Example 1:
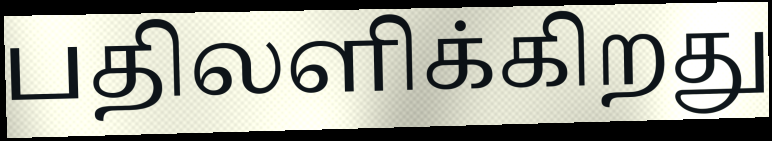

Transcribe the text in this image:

பதிலளிக்கிறது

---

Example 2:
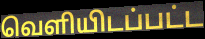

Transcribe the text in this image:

வெளியிடப்பட்ட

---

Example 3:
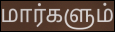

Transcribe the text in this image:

மார்களும்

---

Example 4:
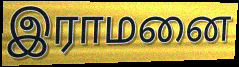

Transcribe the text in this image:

இராமனை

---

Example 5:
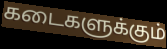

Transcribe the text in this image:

கடைகளுக்கும்